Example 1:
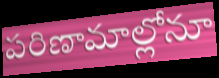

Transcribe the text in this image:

పరిణామాల్లోనూ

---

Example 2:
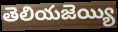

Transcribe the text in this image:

తెలియజెయ్యి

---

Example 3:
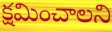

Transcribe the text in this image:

క్షమించాలని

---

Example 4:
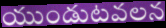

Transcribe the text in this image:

యుండుటవలన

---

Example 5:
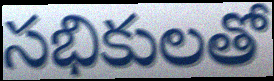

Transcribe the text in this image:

సభికులతో